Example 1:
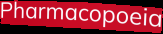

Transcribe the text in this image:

Pharmacopoeia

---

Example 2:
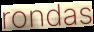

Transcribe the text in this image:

rondas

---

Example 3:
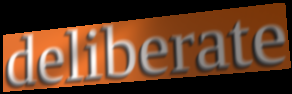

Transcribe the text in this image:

deliberate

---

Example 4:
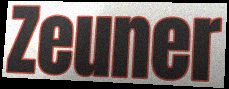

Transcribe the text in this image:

Zeuner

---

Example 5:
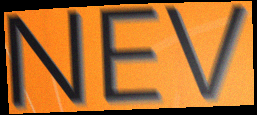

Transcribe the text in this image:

NEV